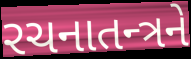
રચનાતન્ત્રને